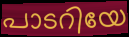
പാടറിയേ